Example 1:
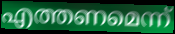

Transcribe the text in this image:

എത്തണമെന്ന്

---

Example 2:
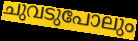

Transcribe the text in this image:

ചുവടുപോലും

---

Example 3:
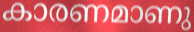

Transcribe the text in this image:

കാരണമാണു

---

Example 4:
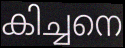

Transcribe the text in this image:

കിച്ചനെ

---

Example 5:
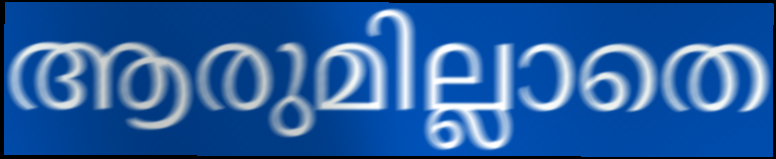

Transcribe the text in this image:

ആരുമില്ലാതെ